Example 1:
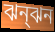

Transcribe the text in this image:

ঝন্ঝন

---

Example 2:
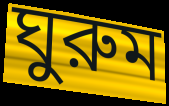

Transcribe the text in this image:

ঘুরুম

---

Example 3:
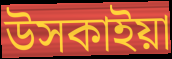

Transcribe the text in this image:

উসকাইয়া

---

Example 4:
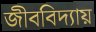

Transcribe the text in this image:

জীববিদ্যায়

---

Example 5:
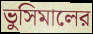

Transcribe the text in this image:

ভুসিমালের